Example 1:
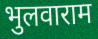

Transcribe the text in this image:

भुलवाराम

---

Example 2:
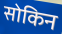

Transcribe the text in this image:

सोकिन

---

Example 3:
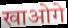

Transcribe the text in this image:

खाओगे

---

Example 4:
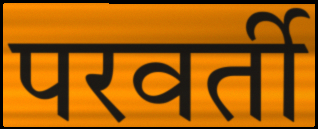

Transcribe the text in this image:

परवर्ती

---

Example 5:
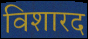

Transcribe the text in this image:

विशारद